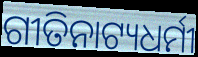
ଗୀତିନାଟ୍ୟଧର୍ମୀ